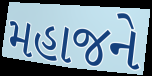
મહાજને